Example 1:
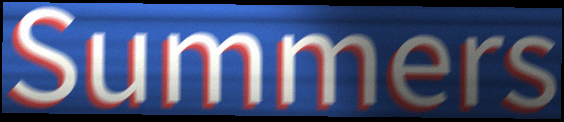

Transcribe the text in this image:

Summers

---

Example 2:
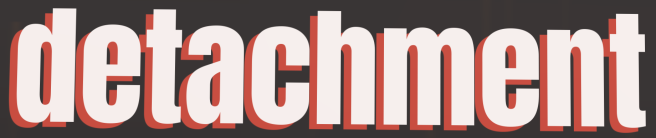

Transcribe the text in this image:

detachment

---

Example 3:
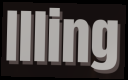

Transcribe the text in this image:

Illing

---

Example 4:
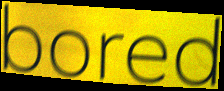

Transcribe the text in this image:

bored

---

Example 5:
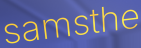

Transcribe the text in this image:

samsthe